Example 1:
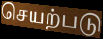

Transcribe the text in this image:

செயற்படு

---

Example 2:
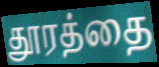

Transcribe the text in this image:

தூரத்தை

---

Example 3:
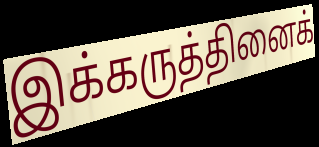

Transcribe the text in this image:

இக்கருத்தினைக்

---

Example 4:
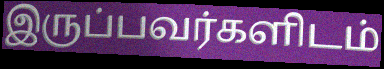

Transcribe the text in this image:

இருப்பவர்களிடம்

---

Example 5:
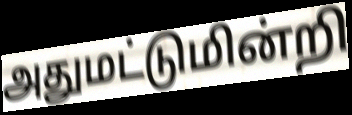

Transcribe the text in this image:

அதுமட்டுமின்றி